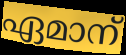
ഏമാന്